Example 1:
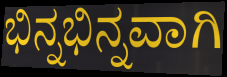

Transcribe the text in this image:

ಭಿನ್ನಭಿನ್ನವಾಗಿ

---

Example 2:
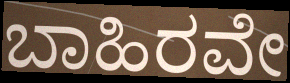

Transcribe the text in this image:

ಬಾಹಿರವೇ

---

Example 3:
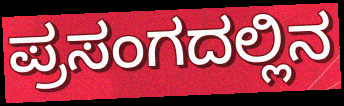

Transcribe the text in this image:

ಪ್ರಸಂಗದಲ್ಲಿನ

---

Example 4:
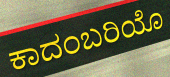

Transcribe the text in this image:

ಕಾದಂಬರಿಯೊ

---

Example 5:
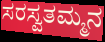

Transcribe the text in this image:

ಸರಸ್ವತಮ್ಮನ